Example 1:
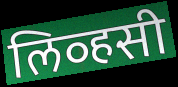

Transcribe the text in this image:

लिव्हसी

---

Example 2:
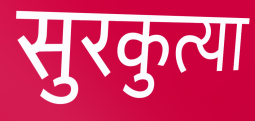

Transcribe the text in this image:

सुरकुत्या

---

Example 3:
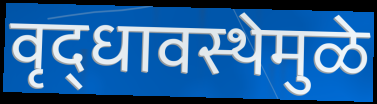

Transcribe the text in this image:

वृद्धावस्थेमुळे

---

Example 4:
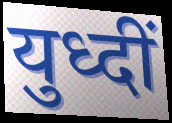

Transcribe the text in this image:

युध्दीं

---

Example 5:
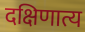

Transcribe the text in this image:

दक्षिणात्य